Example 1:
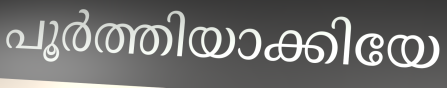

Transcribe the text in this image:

പൂർത്തിയാക്കിയേ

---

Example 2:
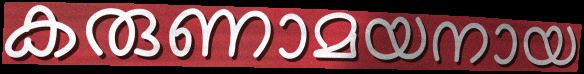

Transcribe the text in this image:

കരുണാമയനായ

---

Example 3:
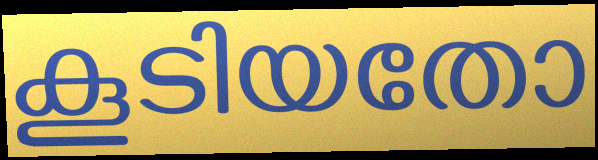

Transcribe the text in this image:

കൂടിയതോ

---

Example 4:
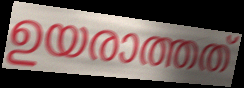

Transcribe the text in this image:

ഉയരാത്തത്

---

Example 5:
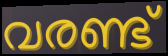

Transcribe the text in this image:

വരണ്ട്